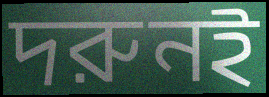
দরুনই